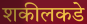
शकीलकडे